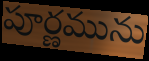
పూర్ణమును